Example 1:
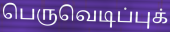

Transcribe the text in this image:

பெருவெடிப்புக்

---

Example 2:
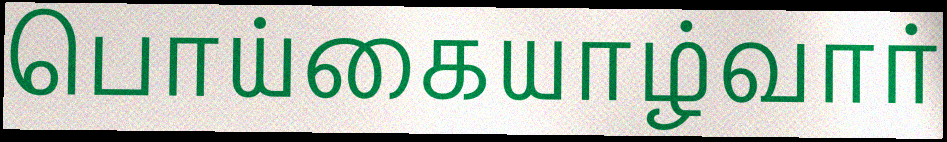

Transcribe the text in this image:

பொய்கையாழ்வார்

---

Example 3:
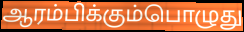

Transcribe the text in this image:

ஆரம்பிக்கும்பொழுது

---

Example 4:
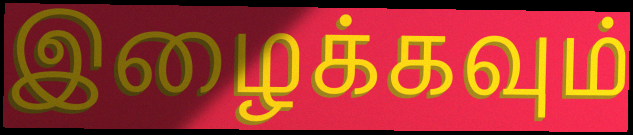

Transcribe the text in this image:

இழைக்கவும்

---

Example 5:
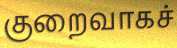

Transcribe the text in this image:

குறைவாகச்